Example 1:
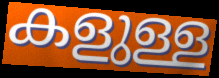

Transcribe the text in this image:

കളുള്ള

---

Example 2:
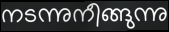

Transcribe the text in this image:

നടന്നുനീങ്ങുന്നു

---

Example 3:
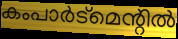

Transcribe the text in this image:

കംപാർട്മെന്റിൽ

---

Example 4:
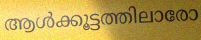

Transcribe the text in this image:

ആൾക്കൂട്ടത്തിലാരോ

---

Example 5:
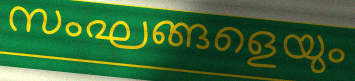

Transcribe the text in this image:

സംഘങ്ങളെയും